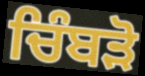
ਚਿੰਬੜੋ